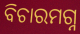
ବିଚାରମଗ୍ନ